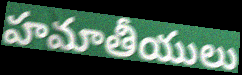
హమాతీయులు